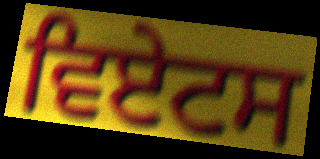
ਵਿਏਟਸ